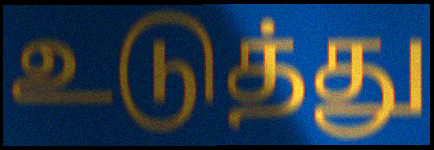
உடுத்து